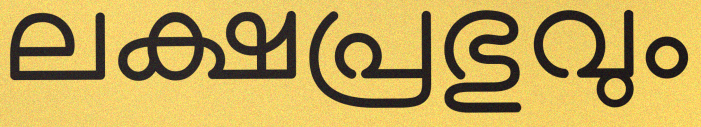
ലക്ഷപ്രഭുവും